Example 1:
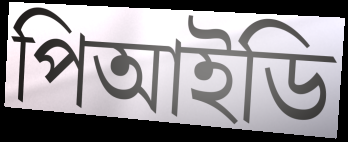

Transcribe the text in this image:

পিআইডি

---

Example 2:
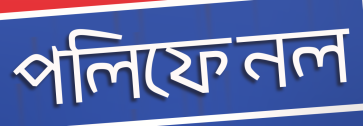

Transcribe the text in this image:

পলিফেনল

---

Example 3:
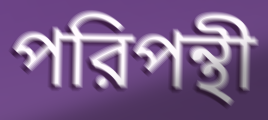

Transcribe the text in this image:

পরিপন্থী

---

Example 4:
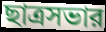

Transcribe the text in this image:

ছাত্রসভার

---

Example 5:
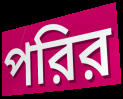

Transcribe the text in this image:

পরির